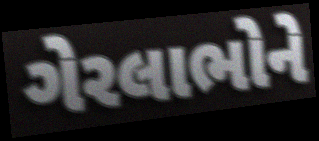
ગેરલાભોને